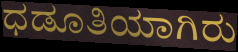
ಧಡೂತಿಯಾಗಿರು